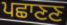
ਪਛਾਣਣ